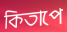
কিতাপে